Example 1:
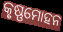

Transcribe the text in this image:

କୃଷ୍ଣମୋହନ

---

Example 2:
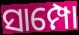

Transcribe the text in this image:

ସାମ୍ପୋ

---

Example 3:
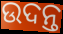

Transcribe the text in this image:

ଉଦନ୍ତ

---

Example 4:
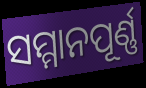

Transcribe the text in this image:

ସମ୍ମାନପୂର୍ଣ୍ଣ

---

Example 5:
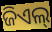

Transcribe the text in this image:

ଜିଏଲ୍